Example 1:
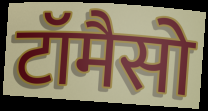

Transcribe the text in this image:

टॉमैसो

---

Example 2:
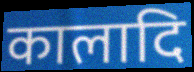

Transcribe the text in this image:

कालादि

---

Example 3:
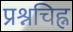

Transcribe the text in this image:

प्रश्नचिह्न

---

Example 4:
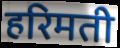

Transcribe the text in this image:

हरिमती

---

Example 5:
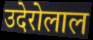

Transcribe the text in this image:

उदेरोलाल